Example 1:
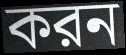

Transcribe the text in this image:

করন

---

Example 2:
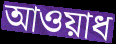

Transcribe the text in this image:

আওয়াধ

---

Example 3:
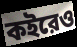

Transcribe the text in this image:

কইরেও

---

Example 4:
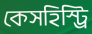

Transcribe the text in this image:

কেসহিস্ট্রি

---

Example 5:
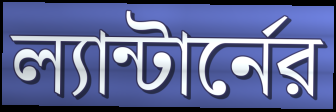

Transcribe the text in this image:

ল্যান্টার্নের